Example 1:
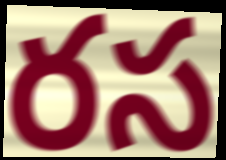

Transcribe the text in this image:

రస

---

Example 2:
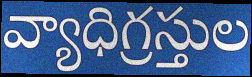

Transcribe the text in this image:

వ్యాధిగ్రస్తుల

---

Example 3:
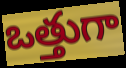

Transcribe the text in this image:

ఒత్తుగా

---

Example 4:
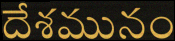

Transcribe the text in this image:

దేశమునం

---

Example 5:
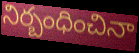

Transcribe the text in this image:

నిర్బంధించినా